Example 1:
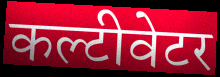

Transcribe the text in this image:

कल्टीवेटर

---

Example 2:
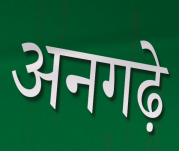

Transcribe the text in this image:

अनगढ़े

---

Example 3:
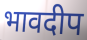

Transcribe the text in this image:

भावदीप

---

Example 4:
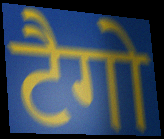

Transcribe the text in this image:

टैगो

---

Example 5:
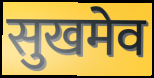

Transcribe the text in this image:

सुखमेव